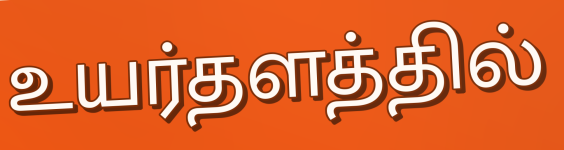
உயர்தளத்தில்